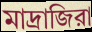
মাদ্রাজিরা